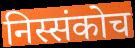
निस्संकोच